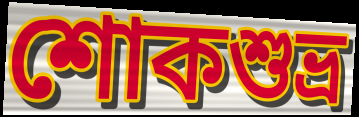
শোকশুভ্র